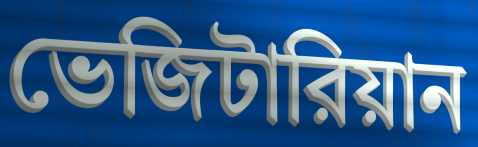
ভেজিটারিয়ান